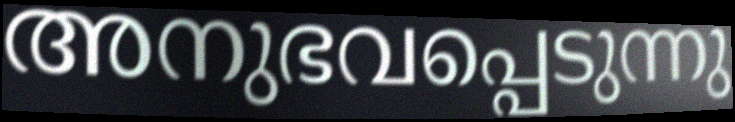
അനുഭവപ്പെടുന്നു